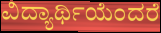
ವಿದ್ಯಾರ್ಥಿಯೆಂದರೆ